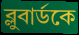
ব্লুবার্ডকে